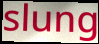
slung